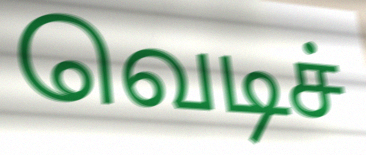
வெடிச்